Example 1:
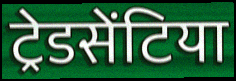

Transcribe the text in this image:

ट्रेडसेंटिया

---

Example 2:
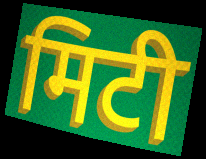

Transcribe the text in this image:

मिटी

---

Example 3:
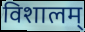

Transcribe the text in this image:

विशालम्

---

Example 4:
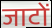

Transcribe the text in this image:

जाटों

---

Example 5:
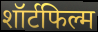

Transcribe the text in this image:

शॉर्टफिल्म